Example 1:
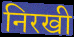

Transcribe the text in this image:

निरखी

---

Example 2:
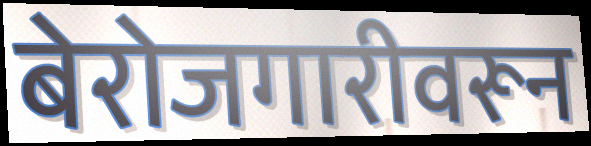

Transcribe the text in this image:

बेरोजगारीवरून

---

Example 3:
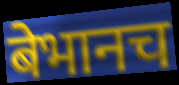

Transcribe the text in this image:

बेभानच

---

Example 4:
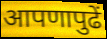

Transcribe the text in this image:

आपणापुढें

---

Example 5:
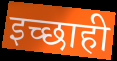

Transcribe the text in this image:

इच्छाही